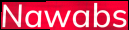
Nawabs